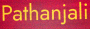
Pathanjali